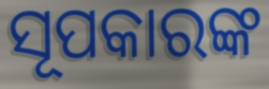
ସୂପକାରଙ୍କ